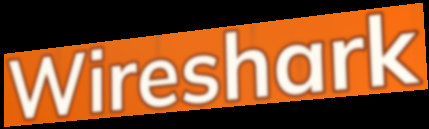
Wireshark